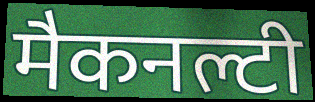
मैकनल्टी